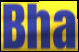
Bha